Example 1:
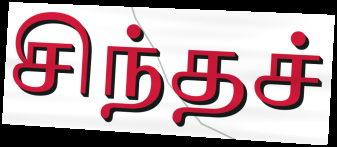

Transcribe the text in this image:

சிந்தச்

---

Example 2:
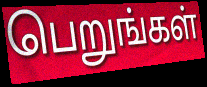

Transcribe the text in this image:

பெறுங்கள்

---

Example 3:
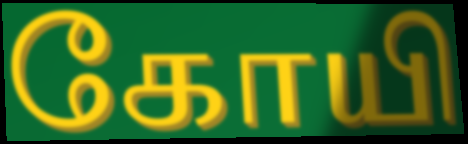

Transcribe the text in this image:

கோயி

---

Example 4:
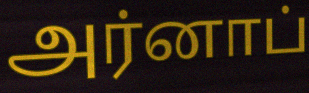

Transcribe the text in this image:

அர்னாப்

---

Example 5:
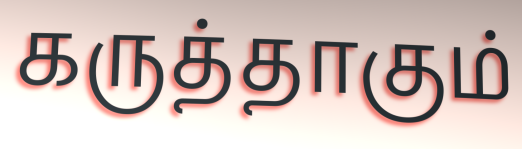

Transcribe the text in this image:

கருத்தாகும்